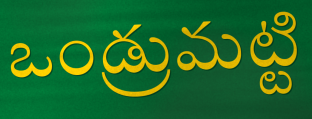
ఒండ్రుమట్టి